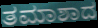
ತಮಾಶಾದ